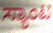
ಸ್ಯಾಂಟ